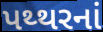
પથ્થરનાં